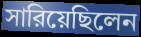
সারিয়েছিলেন